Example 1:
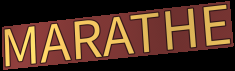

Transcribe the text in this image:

MARATHE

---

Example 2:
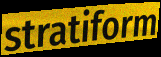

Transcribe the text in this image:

stratiform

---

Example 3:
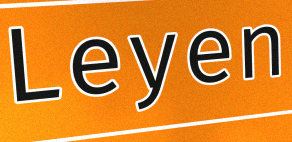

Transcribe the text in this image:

Leyen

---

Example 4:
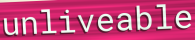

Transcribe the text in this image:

unliveable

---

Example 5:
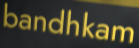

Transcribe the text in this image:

bandhkam